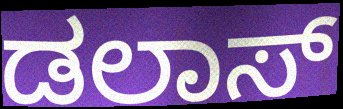
ಡಲಾಸ್